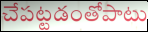
చేపట్టడంతోపాటు